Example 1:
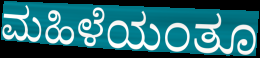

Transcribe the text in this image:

ಮಹಿಳೆಯಂತೂ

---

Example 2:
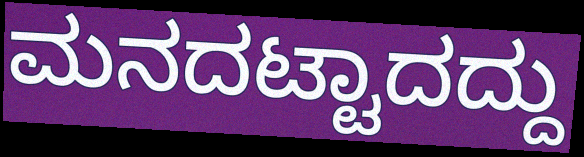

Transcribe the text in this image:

ಮನದಟ್ಟಾದದ್ದು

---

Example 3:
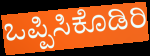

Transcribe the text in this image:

ಒಪ್ಪಿಸಿಕೊಡಿರಿ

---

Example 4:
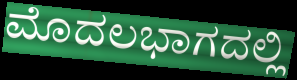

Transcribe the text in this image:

ಮೊದಲಭಾಗದಲ್ಲಿ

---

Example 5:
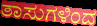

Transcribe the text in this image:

ತಾಸುಗಳಿಂದ